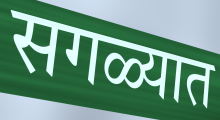
सगळ्यात